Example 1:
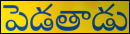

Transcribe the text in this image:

పెడతాడు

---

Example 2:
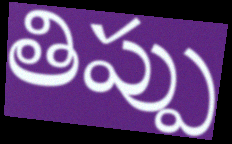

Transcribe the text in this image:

తిప్పు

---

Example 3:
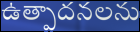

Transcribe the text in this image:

ఉత్పాదనలను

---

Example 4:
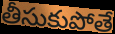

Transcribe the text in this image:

తీసుకుపోతే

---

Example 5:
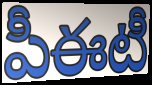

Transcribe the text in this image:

పీఈటీ